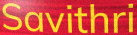
Savithri